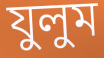
যুলুম